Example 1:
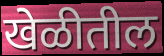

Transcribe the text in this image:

खेळीतील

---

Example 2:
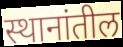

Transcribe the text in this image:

स्थानांतील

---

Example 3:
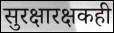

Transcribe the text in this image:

सुरक्षारक्षकही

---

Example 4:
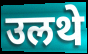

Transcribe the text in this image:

उलथे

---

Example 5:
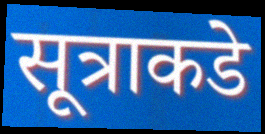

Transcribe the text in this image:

सूत्राकडे